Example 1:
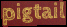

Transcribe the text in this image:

pigtail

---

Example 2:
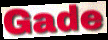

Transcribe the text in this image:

Gade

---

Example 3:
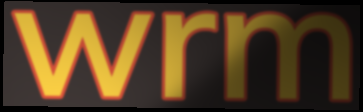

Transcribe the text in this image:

wrm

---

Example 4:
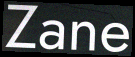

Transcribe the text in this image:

Zane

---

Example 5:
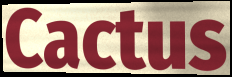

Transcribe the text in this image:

Cactus